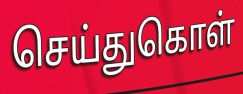
செய்துகொள்